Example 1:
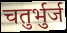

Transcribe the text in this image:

चतुर्भुर्ज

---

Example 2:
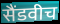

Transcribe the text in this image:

सैंडवीच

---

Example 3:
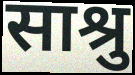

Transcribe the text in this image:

साश्रु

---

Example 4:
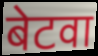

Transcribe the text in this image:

बेटवा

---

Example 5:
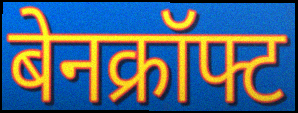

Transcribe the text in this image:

बेनक्रॉफ्ट